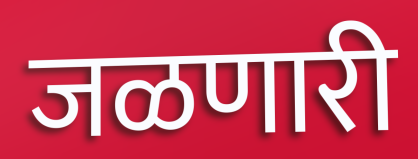
जळणारी